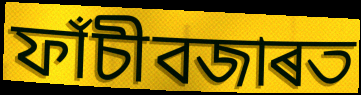
ফাঁচীবজাৰত